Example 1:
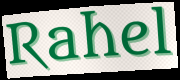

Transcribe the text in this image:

Rahel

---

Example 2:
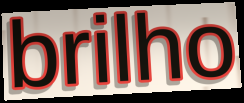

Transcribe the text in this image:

brilho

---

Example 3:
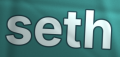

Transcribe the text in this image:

seth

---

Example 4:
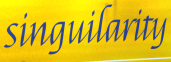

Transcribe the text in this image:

singuilarity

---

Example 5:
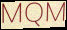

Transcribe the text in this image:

MQM